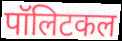
पॉलिटकल